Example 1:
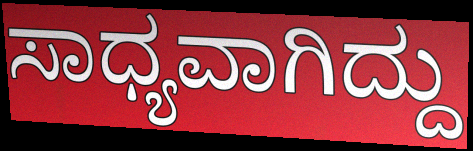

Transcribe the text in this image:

ಸಾಧ್ಯವಾಗಿದ್ದು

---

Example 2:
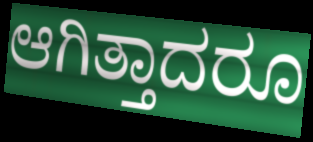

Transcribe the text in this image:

ಆಗಿತ್ತಾದರೂ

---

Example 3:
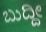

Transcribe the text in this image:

ಬುದ್ದೀ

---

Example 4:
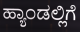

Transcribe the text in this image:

ಹ್ಯಾಂಡಲ್ಲಿಗೆ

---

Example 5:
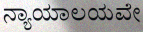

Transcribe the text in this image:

ನ್ಯಾಯಾಲಯವೇ